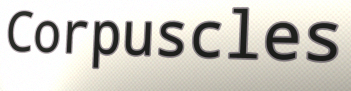
Corpuscles